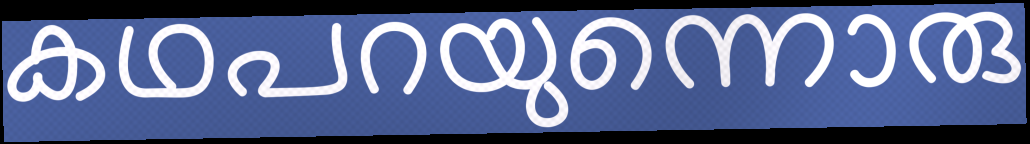
കഥപറയുന്നൊരു